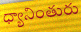
ధ్యానింతురు